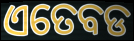
ଏତେବଡ